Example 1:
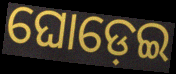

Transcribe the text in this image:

ଘୋଡ଼େଇ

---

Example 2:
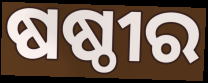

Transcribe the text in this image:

ଷଷ୍ଠୀର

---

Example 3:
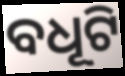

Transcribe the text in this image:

ବଧୂଟି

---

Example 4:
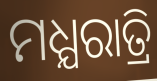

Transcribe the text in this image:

ମଧ୍ଯରାତ୍ରି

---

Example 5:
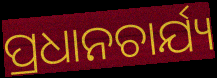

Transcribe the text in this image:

ପ୍ରଧାନଚାର୍ଯ୍ୟ